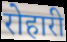
रोहारी